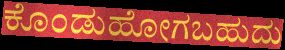
ಕೊಂಡುಹೋಗಬಹುದು